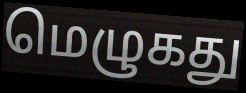
மெழுகது